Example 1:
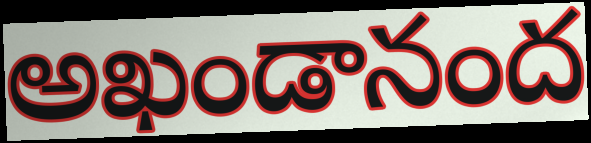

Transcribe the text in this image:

అఖండానంద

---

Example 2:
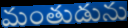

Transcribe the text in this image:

మంతుడును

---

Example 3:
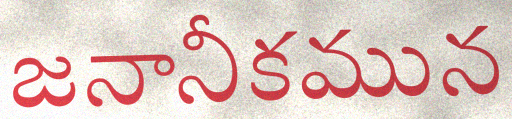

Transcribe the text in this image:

జనానీకమున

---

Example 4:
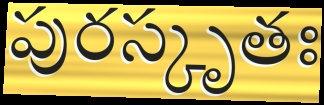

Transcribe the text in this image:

పురస్కృతః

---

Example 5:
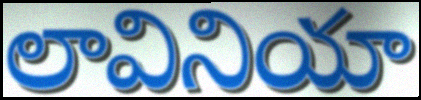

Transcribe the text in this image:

లావినియా